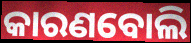
କାରଣବୋଲି